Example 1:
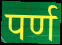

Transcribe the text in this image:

पर्ण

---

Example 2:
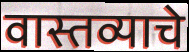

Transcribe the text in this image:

वास्तव्याचे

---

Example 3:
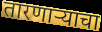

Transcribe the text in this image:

तारणाऱ्याचा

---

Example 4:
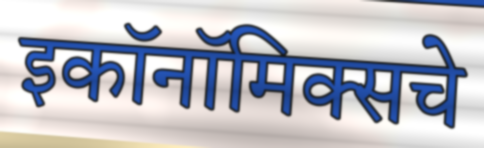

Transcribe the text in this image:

इकॉनॉमिक्सचे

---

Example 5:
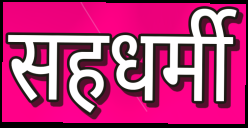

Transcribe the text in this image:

सहधर्मी